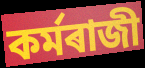
কৰ্মৰাজী